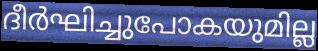
ദീർഘിച്ചുപോകയുമില്ല